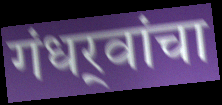
गंधर्वांचा